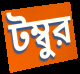
টম্বুর